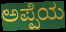
ಅಪ್ಪೆಯ